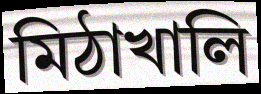
মিঠাখালি